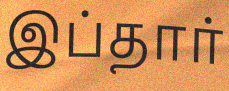
இப்தார்